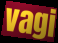
vagi